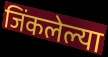
जिंकलेल्या